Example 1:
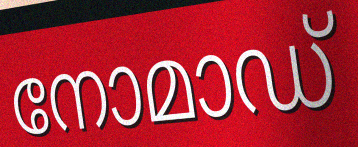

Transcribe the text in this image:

നോമാഡ്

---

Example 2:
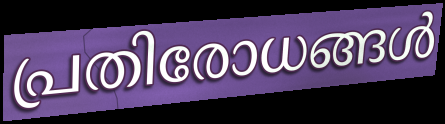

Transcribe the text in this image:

പ്രതിരോധങ്ങൾ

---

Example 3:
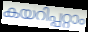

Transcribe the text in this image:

കയറിപ്പറ്റാം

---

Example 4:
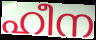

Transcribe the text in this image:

ഹീന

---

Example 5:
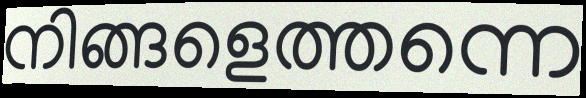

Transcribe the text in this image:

നിങ്ങളെത്തന്നെ